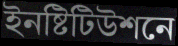
ইনষ্টিটিউশনে